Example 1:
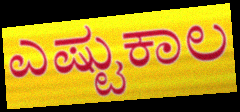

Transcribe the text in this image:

ಎಷ್ಟುಕಾಲ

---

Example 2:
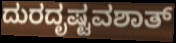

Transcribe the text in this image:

ದುರದೃಷ್ಟವಶಾತ್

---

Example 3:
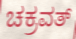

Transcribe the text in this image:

ಚಕ್ರವತ್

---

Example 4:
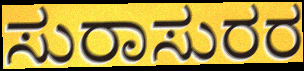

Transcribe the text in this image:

ಸುರಾಸುರರ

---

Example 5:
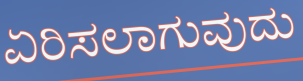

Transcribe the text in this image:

ಏರಿಸಲಾಗುವುದು